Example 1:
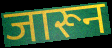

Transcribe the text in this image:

जारून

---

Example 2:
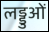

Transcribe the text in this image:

लड्डुओं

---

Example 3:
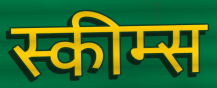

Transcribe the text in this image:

स्कीम्स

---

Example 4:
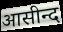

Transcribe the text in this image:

आसीन्द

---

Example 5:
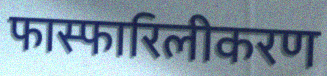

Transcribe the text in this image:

फास्फारिलीकरण